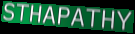
STHAPATHY